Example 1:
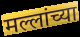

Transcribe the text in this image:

मल्लांच्या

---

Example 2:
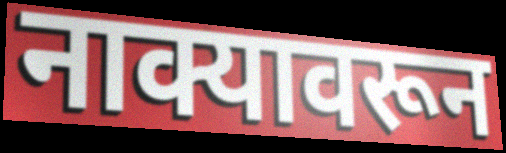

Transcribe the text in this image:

नाक्यावरून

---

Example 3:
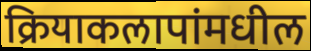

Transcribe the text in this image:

क्रियाकलापांमधील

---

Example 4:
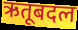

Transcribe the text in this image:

ऋतूबदल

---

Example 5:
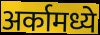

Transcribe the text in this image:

अर्कामध्ये